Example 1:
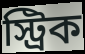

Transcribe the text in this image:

স্ট্রিক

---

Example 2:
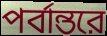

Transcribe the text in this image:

পর্বান্তরে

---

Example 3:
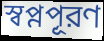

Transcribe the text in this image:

স্বপ্নপূরণ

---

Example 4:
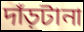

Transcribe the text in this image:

দাঁড়টানা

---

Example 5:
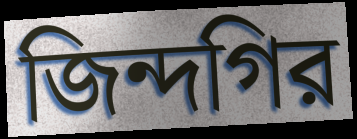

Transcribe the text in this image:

জিন্দগির